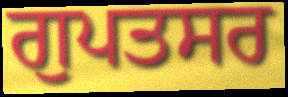
ਗੁਪਤਸਰ